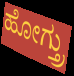
ಹೋಗ್ತ್ರು